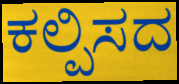
ಕಲ್ಪಿಸದ